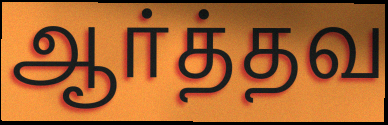
ஆர்த்தவ